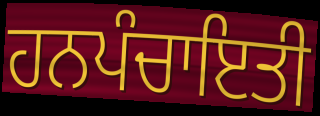
ਹਨਪੰਚਾਇਤੀ